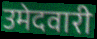
उमेदवारी